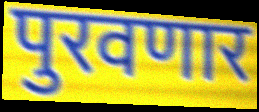
पुरवणार